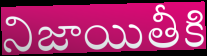
నిజాయితీకి